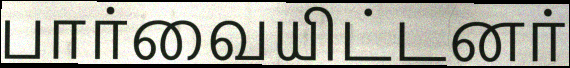
பார்வையிட்டனர்